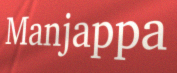
Manjappa